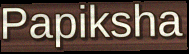
Papiksha